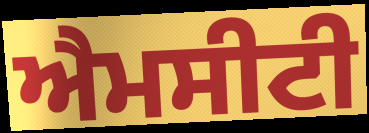
ਐਮਸੀਟੀ